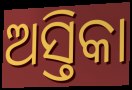
ଅସ୍ତିକା